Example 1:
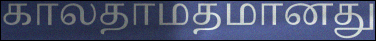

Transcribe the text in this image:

காலதாமதமானது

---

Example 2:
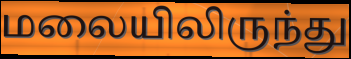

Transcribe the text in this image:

மலையிலிருந்து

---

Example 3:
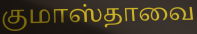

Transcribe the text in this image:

குமாஸ்தாவை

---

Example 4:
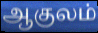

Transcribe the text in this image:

ஆகுலம்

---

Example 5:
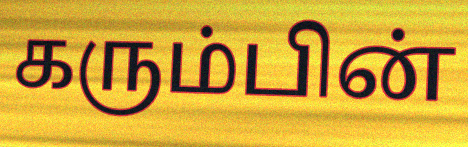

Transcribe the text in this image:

கரும்பின்